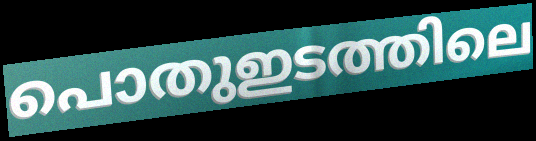
പൊതുഇടത്തിലെ